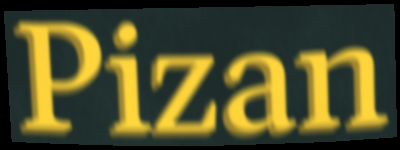
Pizan